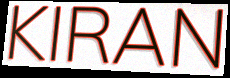
KIRAN